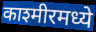
काश्मीरमध्ये